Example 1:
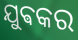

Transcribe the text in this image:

ଯୁଵକର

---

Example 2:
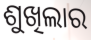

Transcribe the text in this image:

ଶୁଖିଲାର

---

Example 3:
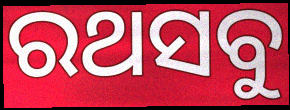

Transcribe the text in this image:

ରଥସବୁ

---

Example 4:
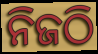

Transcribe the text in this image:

ନିଜଠି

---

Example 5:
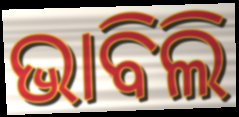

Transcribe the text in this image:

ଭାବିଲି